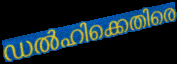
ഡൽഹിക്കെതിരെ